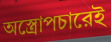
অস্ত্রোপচারেই